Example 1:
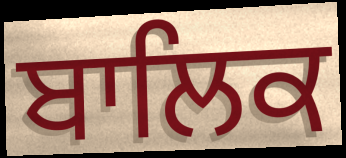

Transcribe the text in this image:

ਬਾਲਿਕ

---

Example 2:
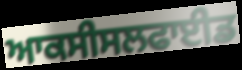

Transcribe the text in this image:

ਆਕਸੀਸਲਫਾਈਡ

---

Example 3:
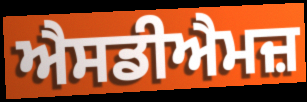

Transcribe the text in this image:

ਐਸਡੀਐਮਜ਼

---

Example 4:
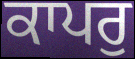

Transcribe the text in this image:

ਕਾਪਰੁ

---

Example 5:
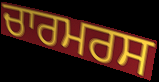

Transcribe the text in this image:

ਚਾਰਮਰਸ